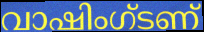
വാഷിംഗ്ടണ്